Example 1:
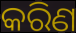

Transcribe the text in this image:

କରିଣ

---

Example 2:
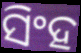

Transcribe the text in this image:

ସିଂହ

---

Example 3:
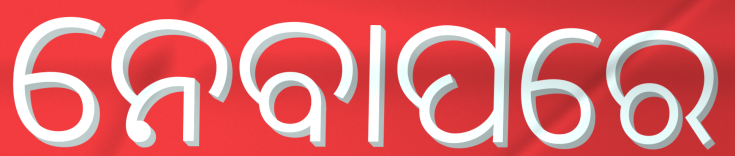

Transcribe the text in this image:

ନେବାପରେ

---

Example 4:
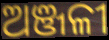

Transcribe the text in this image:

ଅଞ୍ଜଳୀ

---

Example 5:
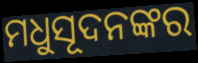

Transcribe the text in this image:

ମଧୁସୂଦନଙ୍କର